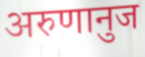
अरुणानुज